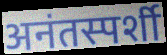
अनंतस्पर्शी